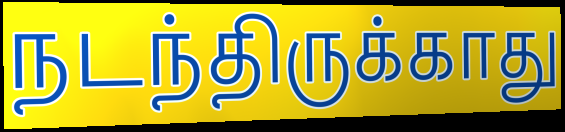
நடந்திருக்காது